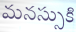
మనస్సుకి